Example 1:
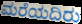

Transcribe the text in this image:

ಮರೆಯದಿರು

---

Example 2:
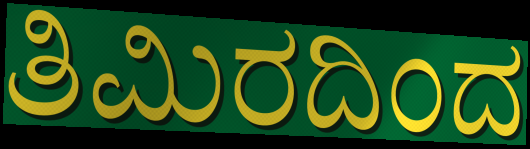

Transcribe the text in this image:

ತಿಮಿರದಿಂದ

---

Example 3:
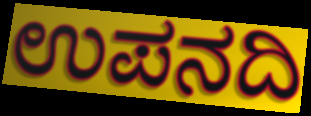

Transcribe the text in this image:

ಉಪನದಿ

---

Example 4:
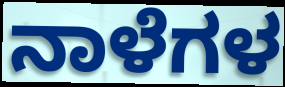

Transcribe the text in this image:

ನಾಳೆಗಳ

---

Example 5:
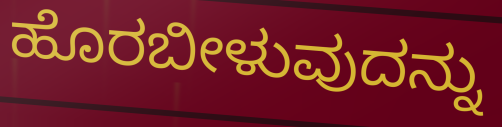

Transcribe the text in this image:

ಹೊರಬೀಳುವುದನ್ನು